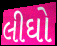
લીઘો